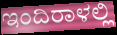
ಇಂದಿರಾಳಲ್ಲಿ